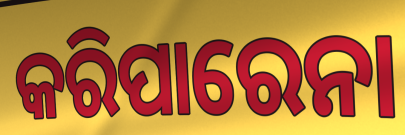
କରିପାରେନା